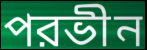
পরভীন